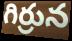
గిర్రున